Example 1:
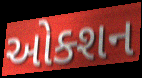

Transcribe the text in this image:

ઓક્શન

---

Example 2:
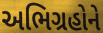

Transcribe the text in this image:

અભિગ્રહોને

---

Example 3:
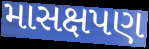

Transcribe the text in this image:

માસક્ષપણ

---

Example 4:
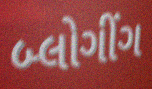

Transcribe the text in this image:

બ્લોગીંગ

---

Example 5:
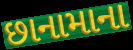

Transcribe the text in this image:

છાનામાના